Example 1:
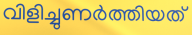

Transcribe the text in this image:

വിളിച്ചുണർത്തിയത്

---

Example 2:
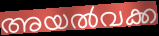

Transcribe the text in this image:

അയൽവക്ക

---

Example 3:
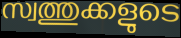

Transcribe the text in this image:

സ്വത്തുക്കളുടെ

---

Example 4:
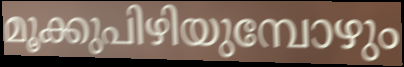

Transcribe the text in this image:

മൂക്കുപിഴിയുമ്പോഴും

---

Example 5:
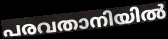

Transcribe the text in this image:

പരവതാനിയിൽ